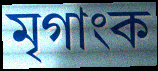
মৃগাংক